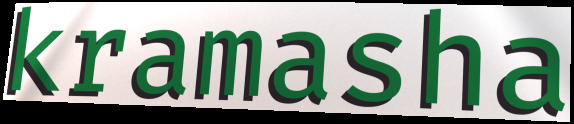
kramasha